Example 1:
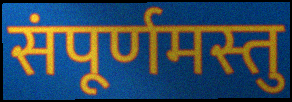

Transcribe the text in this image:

संपूर्णमस्तु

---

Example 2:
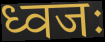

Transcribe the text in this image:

ध्वजः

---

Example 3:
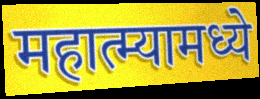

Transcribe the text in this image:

महात्म्यामध्ये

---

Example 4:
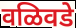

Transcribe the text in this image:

वळिवडे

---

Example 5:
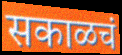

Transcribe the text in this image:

सकाळचं